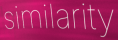
similarity